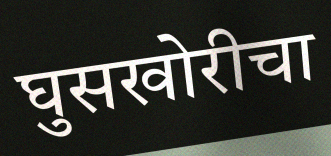
घुसखोरीचा